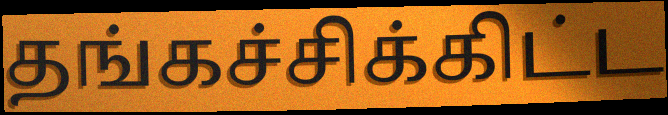
தங்கச்சிக்கிட்ட